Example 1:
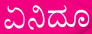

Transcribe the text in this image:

ಏನಿದೂ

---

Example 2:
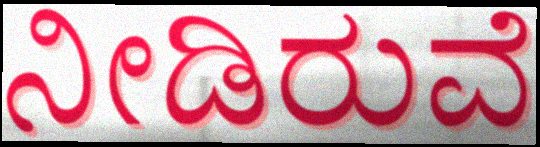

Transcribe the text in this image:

ನೀಡಿರುವೆ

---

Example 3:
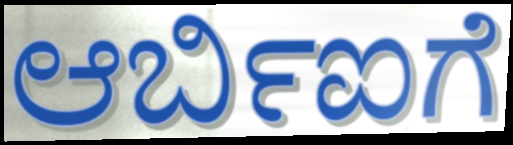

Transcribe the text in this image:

ಆರ್ಬಿಐಗೆ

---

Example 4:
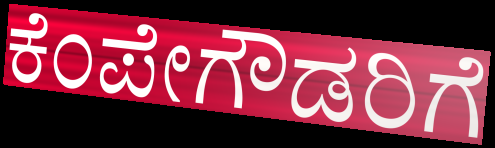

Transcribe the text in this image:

ಕೆಂಪೇಗೌಡರಿಗೆ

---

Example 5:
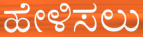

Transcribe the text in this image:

ಹೇಳಿಸಲು